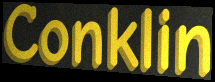
Conklin